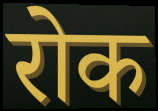
रोक